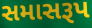
સમાસરૂપ